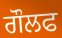
ਗੌਲਫ